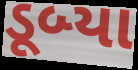
ડૂબ્યા